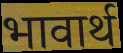
भावार्थ